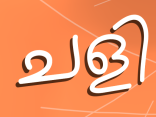
ചളി